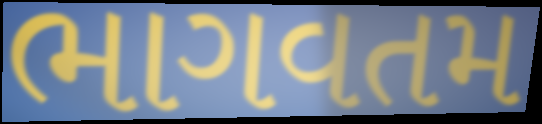
ભાગવતમ